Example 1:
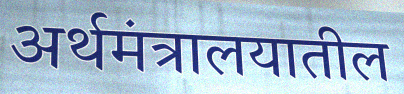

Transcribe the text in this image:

अर्थमंत्रालयातील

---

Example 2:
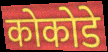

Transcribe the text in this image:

कोकोडे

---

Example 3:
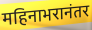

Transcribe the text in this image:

महिनाभरानंतर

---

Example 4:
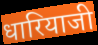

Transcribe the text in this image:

धारियाजी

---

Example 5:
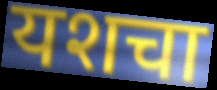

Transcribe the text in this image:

यशचा